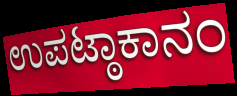
ಉಪಟ್ಠಾಕಾನಂ